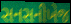
સનસનીખેજ